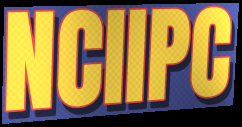
NCIIPC